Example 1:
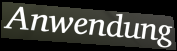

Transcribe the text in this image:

Anwendung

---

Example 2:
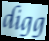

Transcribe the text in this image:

digg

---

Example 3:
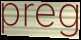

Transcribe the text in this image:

preg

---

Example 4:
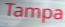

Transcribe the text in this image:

Tampa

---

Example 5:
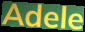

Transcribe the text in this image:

Adele